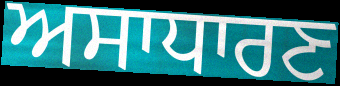
ਅਸਾਧਾਰਣ